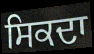
ਸਿਕਦਾ